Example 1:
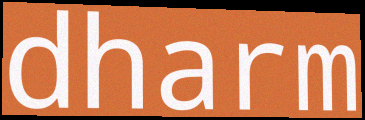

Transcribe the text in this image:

dharm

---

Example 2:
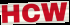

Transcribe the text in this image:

HCW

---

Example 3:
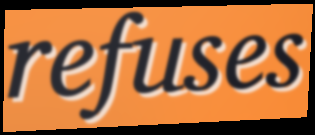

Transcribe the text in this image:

refuses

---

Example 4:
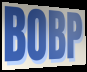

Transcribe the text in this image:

BOBP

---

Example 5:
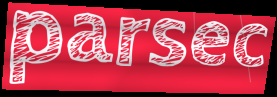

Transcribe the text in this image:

parsec